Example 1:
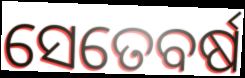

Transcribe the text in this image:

ସେତେବର୍ଷ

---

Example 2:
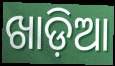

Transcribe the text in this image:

ଖାଡ଼ିଆ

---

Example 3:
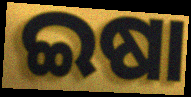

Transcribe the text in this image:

ଇଷା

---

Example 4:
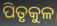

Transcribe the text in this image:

ପିତୃକୁଳ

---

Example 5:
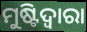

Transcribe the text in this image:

ମୁଷ୍ଟିଦ୍ୱାରା